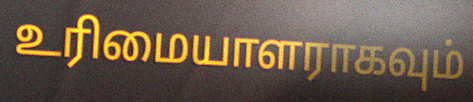
உரிமையாளராகவும்